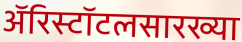
ॲरिस्टॉटलसारख्या